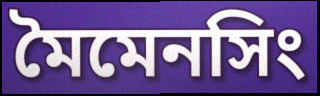
মৈমেনসিং